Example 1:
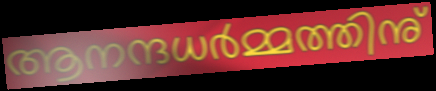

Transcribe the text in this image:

ആനന്ദധർമ്മത്തിനു്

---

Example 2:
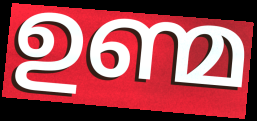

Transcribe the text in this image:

ഉണ്മ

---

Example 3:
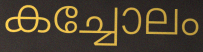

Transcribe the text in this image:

കച്ചോലം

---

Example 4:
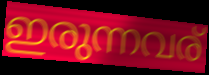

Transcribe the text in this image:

ഇരുന്നവര്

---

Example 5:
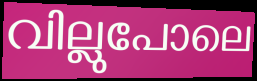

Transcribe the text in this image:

വില്ലുപോലെ